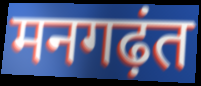
मनगढ़ंत